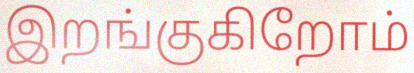
இறங்குகிறோம்